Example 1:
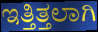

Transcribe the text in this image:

ಇತ್ತಿತ್ತಲಾಗಿ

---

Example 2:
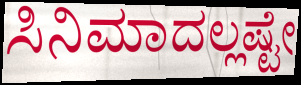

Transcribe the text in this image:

ಸಿನಿಮಾದಲ್ಲಷ್ಟೇ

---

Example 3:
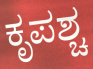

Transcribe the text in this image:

ಕೃಪಶ್ಚ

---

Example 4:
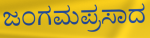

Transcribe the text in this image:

ಜಂಗಮಪ್ರಸಾದ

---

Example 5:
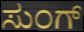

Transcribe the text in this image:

ಸುಂಗ್